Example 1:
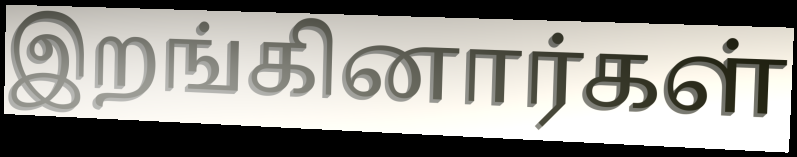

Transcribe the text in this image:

இறங்கினார்கள்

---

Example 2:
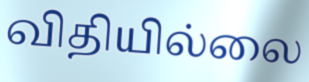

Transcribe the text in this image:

விதியில்லை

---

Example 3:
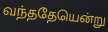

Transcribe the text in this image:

வந்ததேயென்று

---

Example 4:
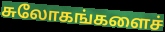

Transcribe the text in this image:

சுலோகங்களைச்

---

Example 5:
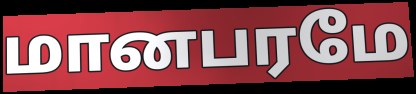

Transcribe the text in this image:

மானபரமே